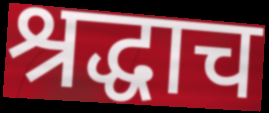
श्रद्धाच